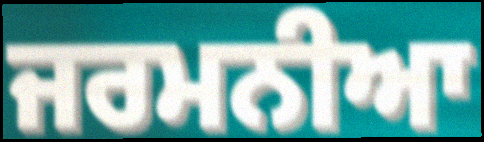
ਜਰਮਨੀਆ